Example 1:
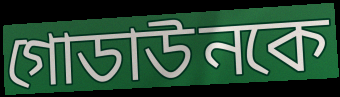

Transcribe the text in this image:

গোডাউনকে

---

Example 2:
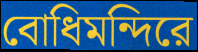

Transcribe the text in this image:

বোধিমন্দিরে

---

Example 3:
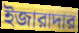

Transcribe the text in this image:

ইজারাদার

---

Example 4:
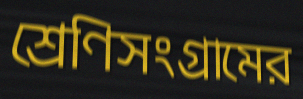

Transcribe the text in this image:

শ্রেণিসংগ্রামের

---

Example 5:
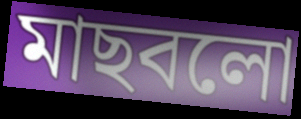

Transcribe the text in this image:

মাছবলো